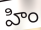
హిం